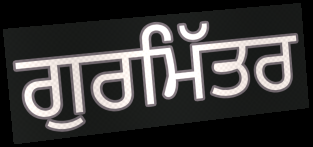
ਗੁਰਮਿੱਤਰ